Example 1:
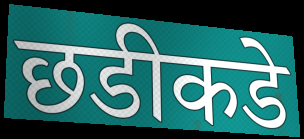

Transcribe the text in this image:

छडीकडे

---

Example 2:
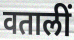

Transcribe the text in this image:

वतालीं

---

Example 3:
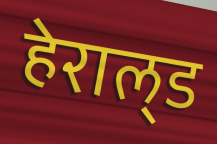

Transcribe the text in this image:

हेराल्ड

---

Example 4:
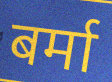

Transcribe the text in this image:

बर्मा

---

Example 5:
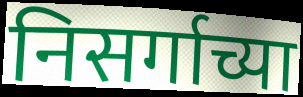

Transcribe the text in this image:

निसर्गाच्या